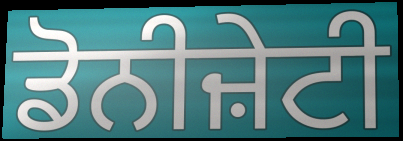
ਡੋਨੀਜ਼ੇਟੀ